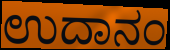
ಉದಾನಂ